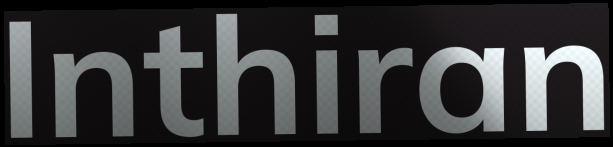
Inthiran